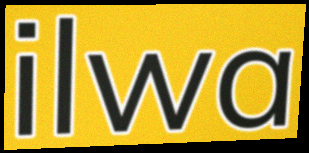
ilwa